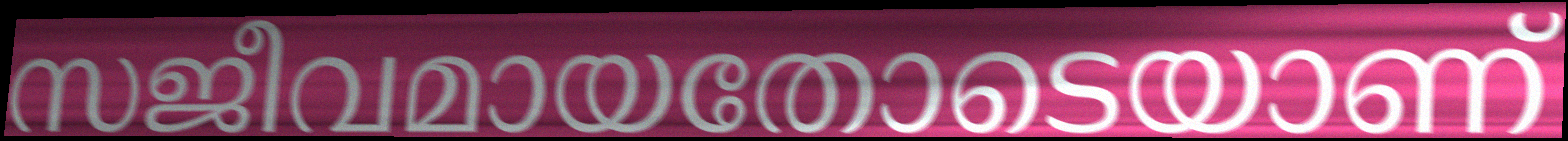
സജീവമായതോടെയാണ്